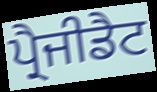
ਪ੍ਰੈਜੀਡੈਟ